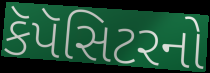
કૅપૅસિટરનો